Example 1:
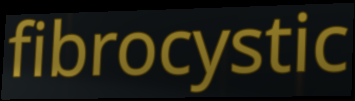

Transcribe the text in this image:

fibrocystic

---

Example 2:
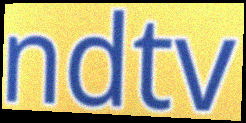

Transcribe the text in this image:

ndtv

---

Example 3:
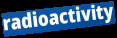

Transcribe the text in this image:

radioactivity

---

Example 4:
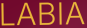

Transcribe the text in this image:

LABIA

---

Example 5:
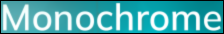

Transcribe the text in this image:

Monochrome